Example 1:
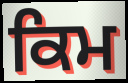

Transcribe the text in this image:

ਕਿਮ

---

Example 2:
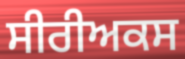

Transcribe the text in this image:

ਸੀਰੀਅਕਸ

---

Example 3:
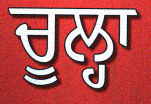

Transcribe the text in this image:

ਚੂਲ੍ਹਾ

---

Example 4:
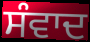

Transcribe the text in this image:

ਸੰਵਾਦ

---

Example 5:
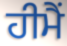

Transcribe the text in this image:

ਹੀਮੈਂ